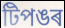
টিপঙৰ